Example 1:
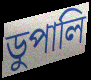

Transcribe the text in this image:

ডুপালি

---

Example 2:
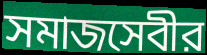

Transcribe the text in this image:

সমাজসেবীর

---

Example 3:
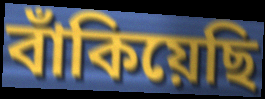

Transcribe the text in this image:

বাঁকিয়েছি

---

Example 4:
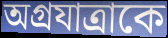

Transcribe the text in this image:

অগ্রযাত্রাকে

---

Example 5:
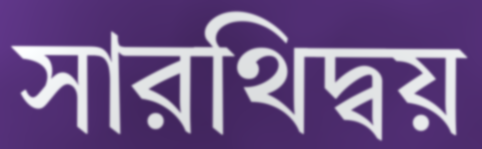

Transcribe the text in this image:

সারথিদ্বয়